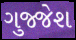
ગુજ્જેશ